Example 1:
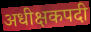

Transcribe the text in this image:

अधीक्षकपदी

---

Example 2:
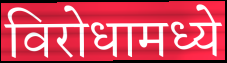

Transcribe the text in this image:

विरोधामध्ये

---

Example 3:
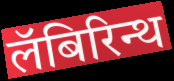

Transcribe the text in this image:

लॅबिरिन्थ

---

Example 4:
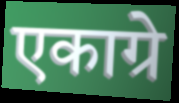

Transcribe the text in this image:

एकाग्रे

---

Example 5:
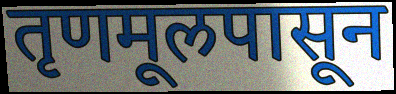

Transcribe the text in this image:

तृणमूलपासून